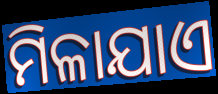
ମିଳାଯାଏ